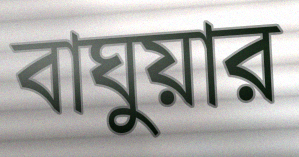
বাঘুয়ার